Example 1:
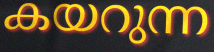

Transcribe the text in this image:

കയറുന്ന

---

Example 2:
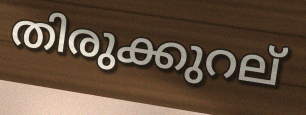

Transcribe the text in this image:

തിരുക്കുറല്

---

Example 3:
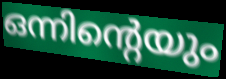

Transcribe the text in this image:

ഒന്നിന്റെയും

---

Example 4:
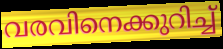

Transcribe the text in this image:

വരവിനെക്കുറിച്ച്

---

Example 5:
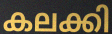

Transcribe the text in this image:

കലക്കി